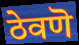
ठेवणॆ